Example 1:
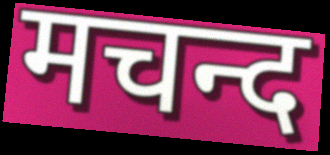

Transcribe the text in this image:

मचन्द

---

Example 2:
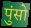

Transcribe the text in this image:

पुंसो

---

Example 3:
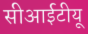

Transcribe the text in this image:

सीआईटीयू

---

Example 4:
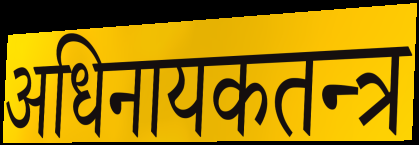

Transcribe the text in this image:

अधिनायकतन्त्र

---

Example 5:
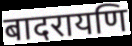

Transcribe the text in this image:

बादरायणि